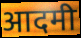
आदमी